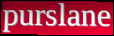
purslane